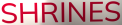
SHRINES